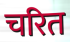
चरित